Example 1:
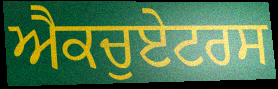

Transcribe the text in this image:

ਐਕਚੁਏਟਰਸ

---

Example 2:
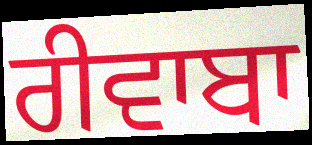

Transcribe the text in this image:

ਰੀਵਾਬਾ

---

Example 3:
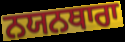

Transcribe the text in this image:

ਨਯਨਥਾਰਾ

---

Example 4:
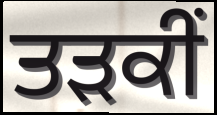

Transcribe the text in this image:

ਤੜਕੀਂ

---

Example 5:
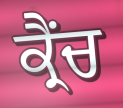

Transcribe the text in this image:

ਕ੍ਰੈਂਚ